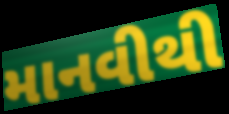
માનવીથી